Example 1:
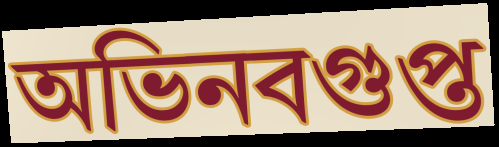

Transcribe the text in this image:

অভিনবগুপ্ত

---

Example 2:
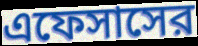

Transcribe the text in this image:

এফেসাসের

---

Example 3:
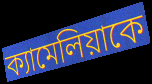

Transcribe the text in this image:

ক্যামেলিয়াকে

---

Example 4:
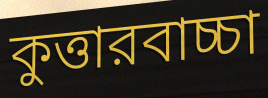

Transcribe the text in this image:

কুত্তারবাচ্চা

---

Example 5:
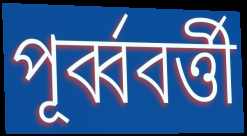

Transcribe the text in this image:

পূর্ব্ববর্ত্তী